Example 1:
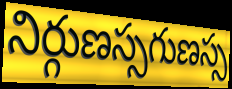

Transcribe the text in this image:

నిర్గుణస్సగుణస్స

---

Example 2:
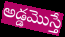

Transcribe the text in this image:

అడ్డమొస్తే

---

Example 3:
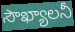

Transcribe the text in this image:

సౌఖ్యాలనీ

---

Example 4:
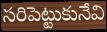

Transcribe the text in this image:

సరిపెట్టుకునేవి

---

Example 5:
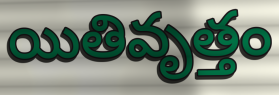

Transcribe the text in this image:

యితివృత్తం